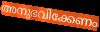
അനുഭവിക്കേണം